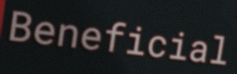
Beneficial